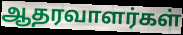
ஆதரவாளர்கள்